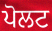
ਪੋਲਟ